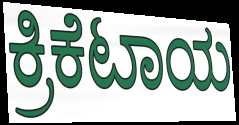
ಕ್ರಿಕೆಟಾಯ